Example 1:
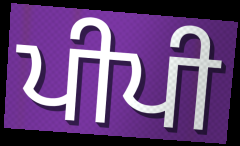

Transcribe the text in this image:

ਪੀਪੀ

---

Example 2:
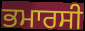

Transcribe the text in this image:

ਭਮਾਰਸੀ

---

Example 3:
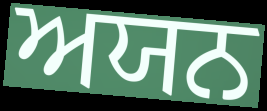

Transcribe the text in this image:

ਅਯਨ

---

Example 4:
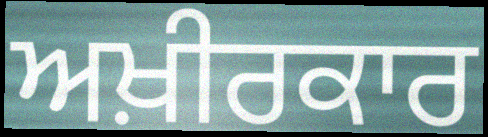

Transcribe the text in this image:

ਅਖ਼ੀਰਕਾਰ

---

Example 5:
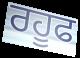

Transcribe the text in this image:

ਰਹੂਫ